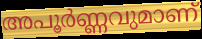
അപൂർണ്ണവുമാണ്